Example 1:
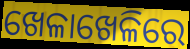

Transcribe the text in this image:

ଖେଳାଖେଳିରେ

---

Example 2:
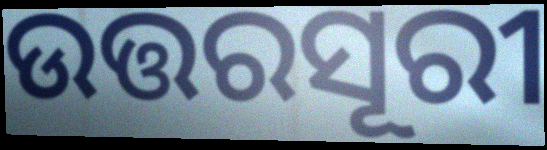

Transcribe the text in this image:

ଉତ୍ତରସୂରୀ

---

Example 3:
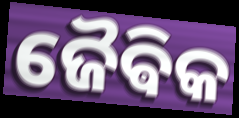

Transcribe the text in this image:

ଜୈଵିକ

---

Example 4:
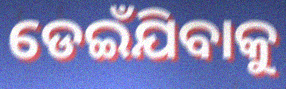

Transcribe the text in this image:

ଡେଇଁଯିବାକୁ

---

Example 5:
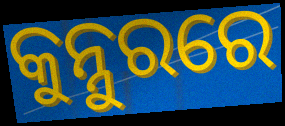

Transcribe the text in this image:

କୁନ୍ନୁରରେ